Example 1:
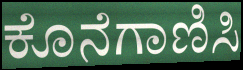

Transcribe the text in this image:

ಕೊನೆಗಾಣಿಸಿ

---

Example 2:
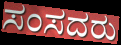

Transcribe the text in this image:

ಸಂಸದರು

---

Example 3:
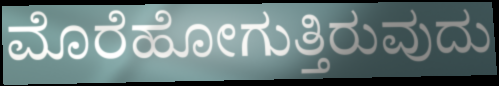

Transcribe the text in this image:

ಮೊರೆಹೋಗುತ್ತಿರುವುದು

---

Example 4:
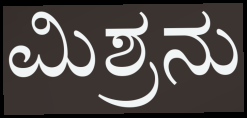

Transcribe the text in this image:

ಮಿಶ್ರನು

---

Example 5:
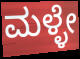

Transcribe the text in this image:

ಮಳ್ಳೇ